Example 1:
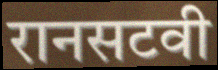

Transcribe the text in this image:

रानसटवी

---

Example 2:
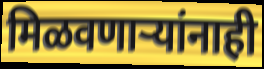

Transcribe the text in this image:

मिळवणाऱ्यांनाही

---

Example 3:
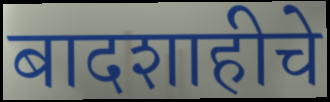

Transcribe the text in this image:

बादशाहीचे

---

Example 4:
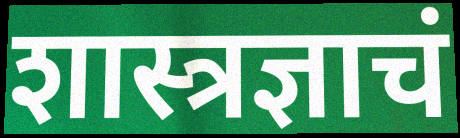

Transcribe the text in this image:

शास्त्रज्ञाचं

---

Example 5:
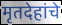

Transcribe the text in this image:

मृतदेहांचे